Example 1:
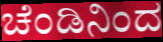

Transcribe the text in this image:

ಚೆಂಡಿನಿಂದ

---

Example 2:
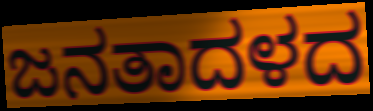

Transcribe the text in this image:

ಜನತಾದಳದ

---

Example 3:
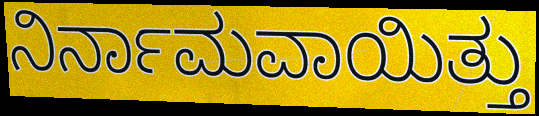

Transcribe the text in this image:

ನಿರ್ನಾಮವಾಯಿತ್ತು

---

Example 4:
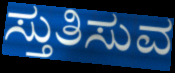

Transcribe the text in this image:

ಸ್ತುತಿಸುವ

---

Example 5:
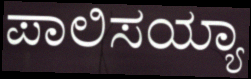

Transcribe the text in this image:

ಪಾಲಿಸಯ್ಯಾ